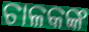
ଚାଳକଙ୍କ